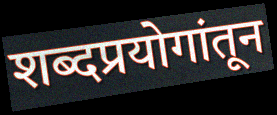
शब्दप्रयोगांतून